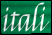
itali